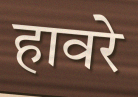
हावरे